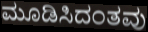
ಮೂಡಿಸಿದಂತವು